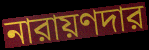
নারায়ণদার